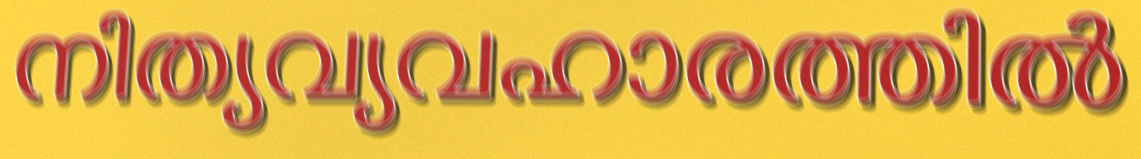
നിത്യവ്യവഹാരത്തിൽ